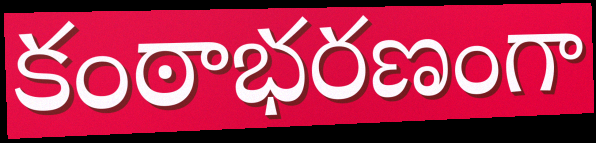
కంఠాభరణంగా